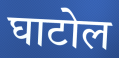
घाटोल